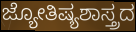
ಜ್ಯೋತಿಷ್ಯಶಾಸ್ತ್ರದ